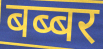
बब्बर